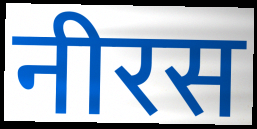
नीरस